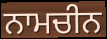
ਨਾਮਚੀਨ